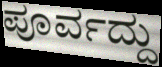
ಪೂರ್ವದ್ದು